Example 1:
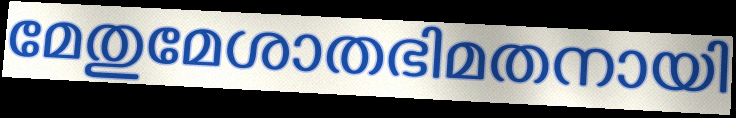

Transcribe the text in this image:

മേതുമേശാതഭിമതനായി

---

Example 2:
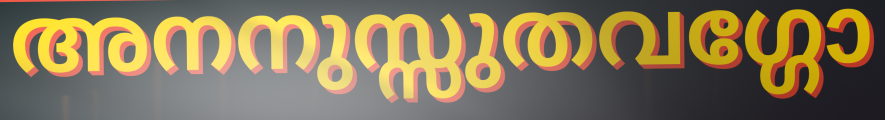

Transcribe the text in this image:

അനനുസ്സുതവഗ്ഗോ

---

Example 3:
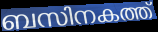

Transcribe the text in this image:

ബസിനകത്ത്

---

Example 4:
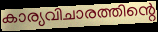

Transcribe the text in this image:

കാര്യവിചാരത്തിന്റെ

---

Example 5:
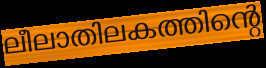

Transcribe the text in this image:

ലീലാതിലകത്തിന്റെ